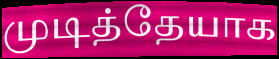
முடித்தேயாக